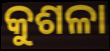
କୁଶଳା